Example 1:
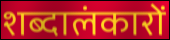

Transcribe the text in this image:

शब्दालंकारों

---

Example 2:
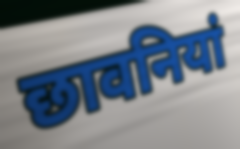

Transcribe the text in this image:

छावनियां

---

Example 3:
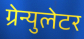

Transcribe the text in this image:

ग्रेन्युलेटर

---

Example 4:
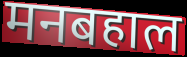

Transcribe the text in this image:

मनबहाल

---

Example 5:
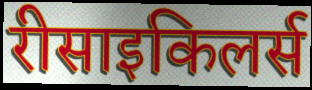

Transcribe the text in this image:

रीसाइकिलर्स